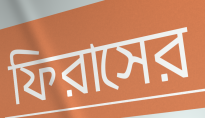
ফিরাসের